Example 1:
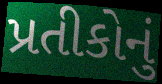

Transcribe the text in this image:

પ્રતીકોનું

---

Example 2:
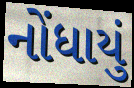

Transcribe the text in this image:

નોંધાયું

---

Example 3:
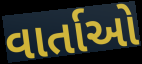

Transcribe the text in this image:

વાર્તાઓ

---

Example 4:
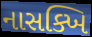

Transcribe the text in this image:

નાસક્ખિ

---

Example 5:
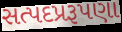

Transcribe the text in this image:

સત્પદપ્રરૂપણા